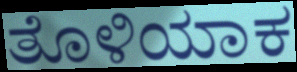
ತೊಳಿಯಾಕ